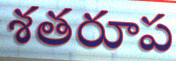
శతరూప